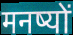
मनष्यों